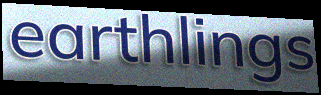
earthlings